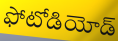
ఫోటోడియోడ్